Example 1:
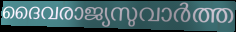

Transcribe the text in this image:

ദൈവരാജ്യസുവാർത്ത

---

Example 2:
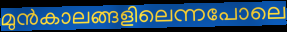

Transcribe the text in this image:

മുൻകാലങ്ങളിലെന്നപോലെ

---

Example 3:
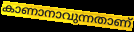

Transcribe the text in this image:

കാണാനാവുന്നതാണ്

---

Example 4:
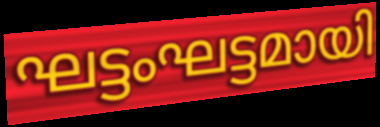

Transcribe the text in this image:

ഘട്ടംഘട്ടമായി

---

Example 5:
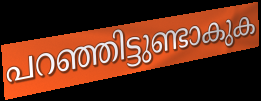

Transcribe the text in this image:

പറഞ്ഞിട്ടുണ്ടാകുക